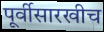
पूर्वीसारखीच